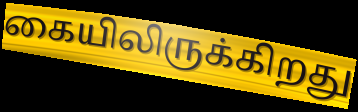
கையிலிருக்கிறது